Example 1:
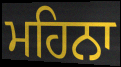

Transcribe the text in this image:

ਮਹਿਨਾ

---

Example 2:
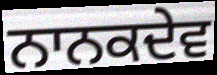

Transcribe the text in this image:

ਨਾਨਕਦੇਵ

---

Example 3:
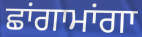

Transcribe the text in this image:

ਛਾਂਗਾਮਾਂਗਾ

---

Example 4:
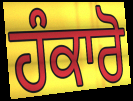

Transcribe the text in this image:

ਹੰਕਾਰੋ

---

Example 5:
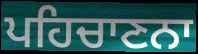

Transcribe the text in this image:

ਪਹਿਚਾਣਨਾ